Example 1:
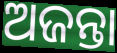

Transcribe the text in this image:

ଅଜନ୍ତା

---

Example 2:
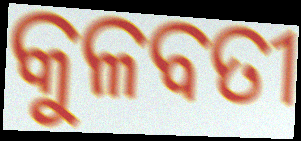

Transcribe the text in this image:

କୁଳବତୀ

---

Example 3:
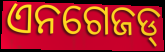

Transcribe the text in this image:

ଏନଗେଜଡ୍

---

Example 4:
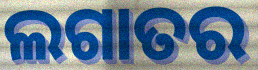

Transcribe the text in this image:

ଲଗାତର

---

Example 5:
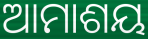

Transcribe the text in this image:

ଆମାଶୟ